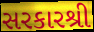
સરકારશ્રી